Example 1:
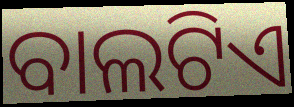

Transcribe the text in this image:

ବାଲଟିଏ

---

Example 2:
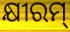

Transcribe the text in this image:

କ୍ଷୀରମ୍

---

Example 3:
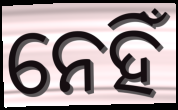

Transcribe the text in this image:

ନେହିଁ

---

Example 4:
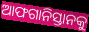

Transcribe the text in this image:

ଆଫଗାନିସ୍ତାନକୁ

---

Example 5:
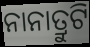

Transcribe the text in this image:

ନାନାତ୍ରୁଟି